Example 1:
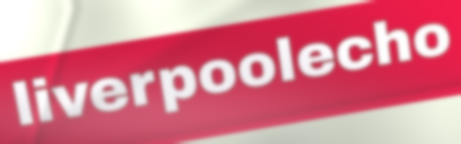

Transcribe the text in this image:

liverpoolecho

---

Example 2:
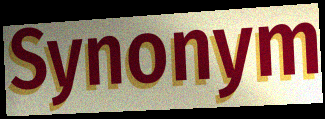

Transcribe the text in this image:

Synonym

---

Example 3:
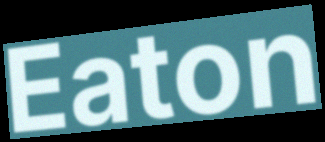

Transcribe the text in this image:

Eaton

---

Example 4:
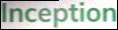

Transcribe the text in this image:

Inception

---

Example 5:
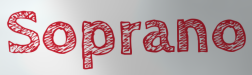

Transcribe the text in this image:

Soprano